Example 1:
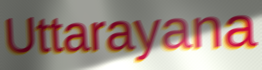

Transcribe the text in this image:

Uttarayana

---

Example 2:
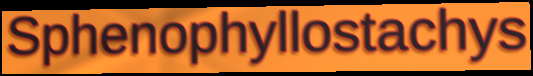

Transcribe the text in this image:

Sphenophyllostachys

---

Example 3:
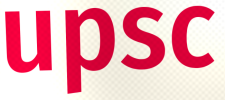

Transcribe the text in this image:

upsc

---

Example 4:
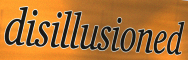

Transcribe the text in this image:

disillusioned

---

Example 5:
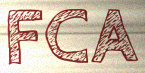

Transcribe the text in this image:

FCA